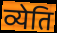
व्येति